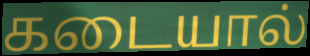
கடையால்